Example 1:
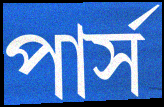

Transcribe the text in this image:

পার্স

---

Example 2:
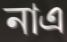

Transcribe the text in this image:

নাএ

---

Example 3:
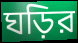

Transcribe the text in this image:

ঘড়ির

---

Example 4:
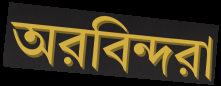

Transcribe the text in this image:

অরবিন্দরা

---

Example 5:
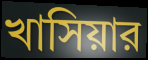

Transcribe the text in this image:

খাসিয়ার